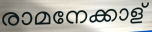
രാമനേക്കാള്